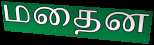
மதைன